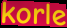
korle